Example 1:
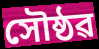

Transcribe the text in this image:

সৌষ্ঠৱ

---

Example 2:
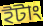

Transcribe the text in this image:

ইটাং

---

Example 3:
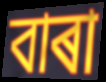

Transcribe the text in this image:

বাৰা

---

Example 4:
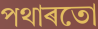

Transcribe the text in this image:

পথাৰতো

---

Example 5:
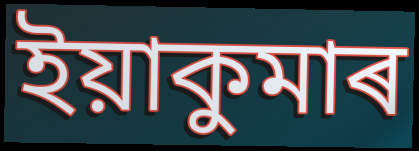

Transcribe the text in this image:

ইয়াকুমাৰ